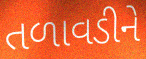
તળાવડીને